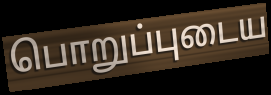
பொறுப்புடைய